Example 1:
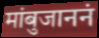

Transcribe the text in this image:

मांबुजाननं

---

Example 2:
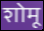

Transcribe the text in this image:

शोमू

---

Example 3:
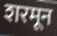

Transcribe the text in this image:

शरमून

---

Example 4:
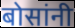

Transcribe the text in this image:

बोसांनी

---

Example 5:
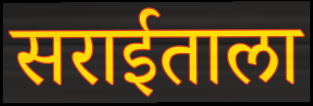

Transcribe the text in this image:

सराईताला